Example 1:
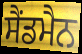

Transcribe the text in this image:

ਸੈਂਡਮੈਨ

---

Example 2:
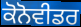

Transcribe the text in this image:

ਕੋਨੋਵੀਡਰ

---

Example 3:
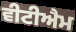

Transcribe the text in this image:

ਵੀਟੀਐਮ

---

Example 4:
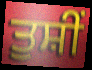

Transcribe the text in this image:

ਤੁਸ਼ੀਂ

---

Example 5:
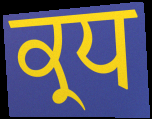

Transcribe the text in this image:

ਕ੍ਰਧ